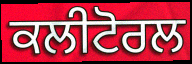
ਕਲੀਟੋਰਲ